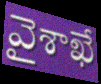
వైశాఖే